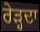
ਰੇੜ੍ਹਦਾ